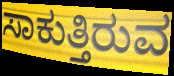
ಸಾಕುತ್ತಿರುವ